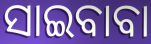
ସାଇବାବା